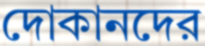
দোকানদের